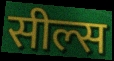
सील्स